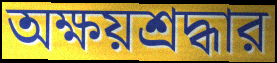
অক্ষয়শ্রদ্ধার